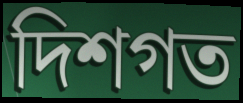
দিশগত